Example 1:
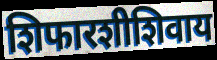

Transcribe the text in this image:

शिफारशीशिवाय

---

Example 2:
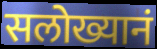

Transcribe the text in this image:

सलोख्यानं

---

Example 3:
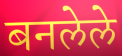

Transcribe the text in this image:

बनलेले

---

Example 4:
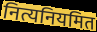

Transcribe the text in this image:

नित्यनियमित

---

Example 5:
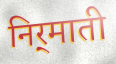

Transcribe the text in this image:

निर्माती